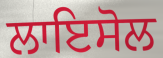
ਲਾਇਸੋਲ